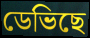
ডেভিছে